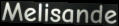
Melisande